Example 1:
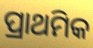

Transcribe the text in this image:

ପ୍ରାଥମିକ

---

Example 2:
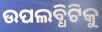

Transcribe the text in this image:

ଉପଲବ୍ଧିଟିକୁ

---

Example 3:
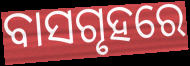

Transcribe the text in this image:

ବାସଗୃହରେ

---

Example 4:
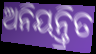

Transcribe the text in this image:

ଅନିୟନ୍ତ୍ରିତ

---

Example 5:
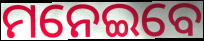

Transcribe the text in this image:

ମନେଇବେ